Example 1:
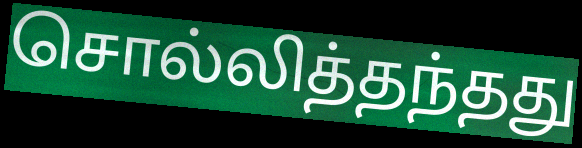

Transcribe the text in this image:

சொல்லித்தந்தது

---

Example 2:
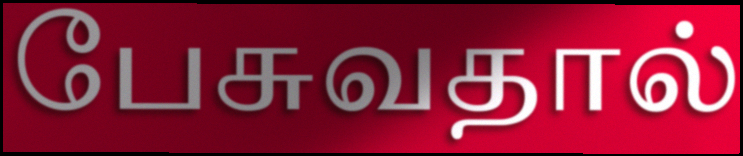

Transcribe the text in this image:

பேசுவதால்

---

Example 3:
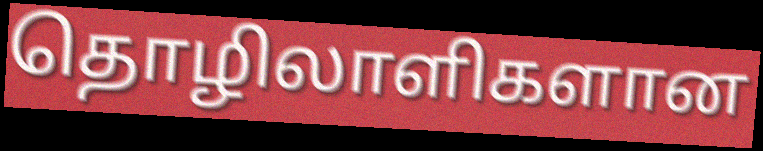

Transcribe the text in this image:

தொழிலாளிகளான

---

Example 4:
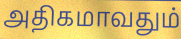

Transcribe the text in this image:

அதிகமாவதும்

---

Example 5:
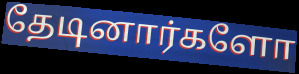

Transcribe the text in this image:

தேடினார்களோ